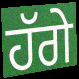
ਹੱਗੇ